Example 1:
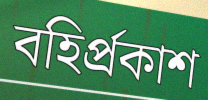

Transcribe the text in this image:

বহিৰ্প্ৰকাশ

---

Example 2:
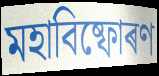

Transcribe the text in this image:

মহাবিষ্ফোৰণ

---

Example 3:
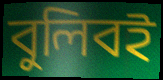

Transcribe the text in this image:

বুলিবই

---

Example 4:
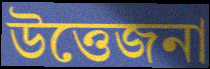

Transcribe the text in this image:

উত্তেজনা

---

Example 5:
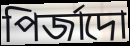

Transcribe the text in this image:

পিৰ্জাদো